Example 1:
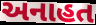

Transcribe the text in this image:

અનાહત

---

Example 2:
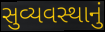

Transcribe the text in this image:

સુવ્યવસ્થાનું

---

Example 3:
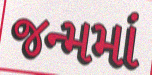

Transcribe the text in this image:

જન્મમાં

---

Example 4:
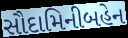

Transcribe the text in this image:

સૌદામિનીબહેન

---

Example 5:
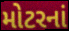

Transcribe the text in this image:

મોટરનાં